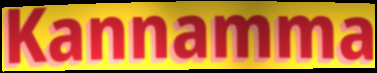
Kannamma